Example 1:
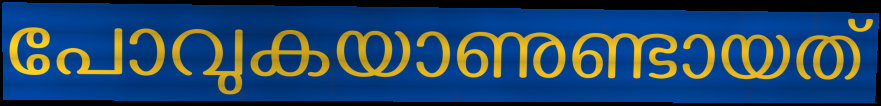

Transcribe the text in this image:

പോവുകയാണുണ്ടായത്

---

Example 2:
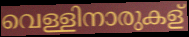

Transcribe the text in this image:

വെള്ളിനാരുകള്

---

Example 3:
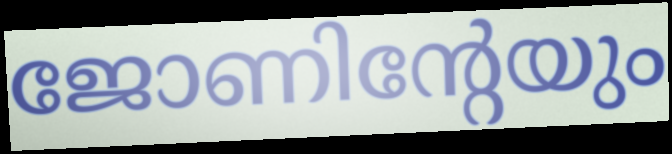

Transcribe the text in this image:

ജോണിന്റേയും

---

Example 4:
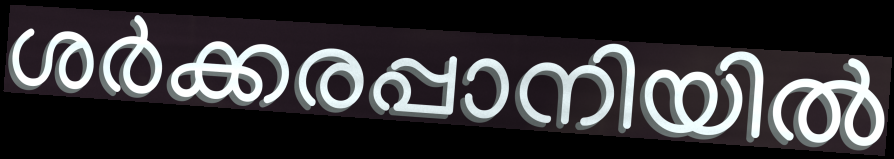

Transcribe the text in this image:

ശർക്കരപ്പാനിയിൽ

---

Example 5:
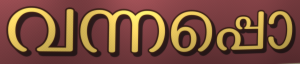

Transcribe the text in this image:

വന്നപ്പൊ